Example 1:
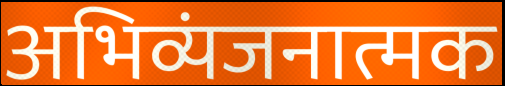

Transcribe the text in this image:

अभिव्यंजनात्मक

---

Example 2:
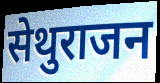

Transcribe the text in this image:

सेथुराजन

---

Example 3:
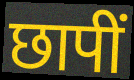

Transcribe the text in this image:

छापीं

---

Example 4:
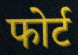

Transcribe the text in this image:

फोर्ट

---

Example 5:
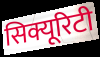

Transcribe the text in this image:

सिक्यूरिटी